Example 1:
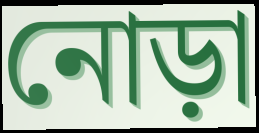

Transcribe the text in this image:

নোড়া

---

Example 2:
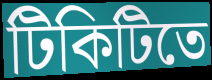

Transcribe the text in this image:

টিকিটিতে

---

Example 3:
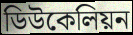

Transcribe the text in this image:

ডিউকেলিয়ন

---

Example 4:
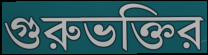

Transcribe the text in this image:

গুরুভক্তির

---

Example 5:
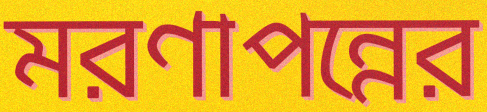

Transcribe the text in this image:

মরণাপন্নের